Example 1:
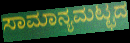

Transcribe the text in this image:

ಸಾಮಾನ್ಯಮಟ್ಟದ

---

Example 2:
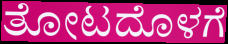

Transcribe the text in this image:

ತೋಟದೊಳಗೆ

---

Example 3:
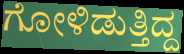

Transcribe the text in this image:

ಗೋಳಿಡುತ್ತಿದ್ದ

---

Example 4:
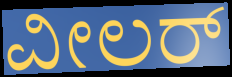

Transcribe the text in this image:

ವೀಲರ್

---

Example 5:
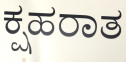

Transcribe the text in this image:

ಕ್ಷಹರಾತ